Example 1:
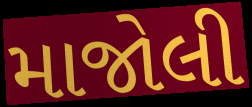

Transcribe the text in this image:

માજોલી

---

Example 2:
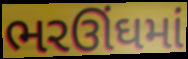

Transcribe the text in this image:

ભરઊંઘમાં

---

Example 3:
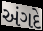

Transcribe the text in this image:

અંગદે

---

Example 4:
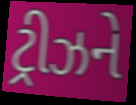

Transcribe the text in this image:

ટ્રીઝને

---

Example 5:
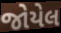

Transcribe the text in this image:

જોયેલ